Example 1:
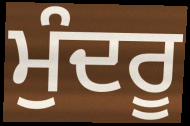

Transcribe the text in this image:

ਮੁੰਦਰੂ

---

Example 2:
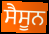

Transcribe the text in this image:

ਸੈਸੂਨ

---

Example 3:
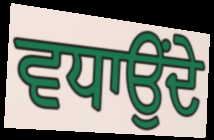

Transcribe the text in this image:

ਵਧਾਉਂਦੇ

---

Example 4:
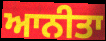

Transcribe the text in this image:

ਆਨੀਤਾ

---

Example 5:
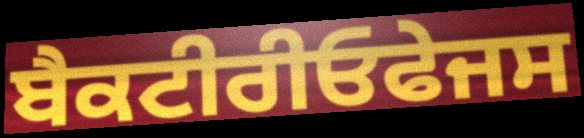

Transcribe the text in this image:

ਬੈਕਟੀਰੀਓਫੇਜਸ